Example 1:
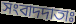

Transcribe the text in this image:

সংবাদদাতাঃ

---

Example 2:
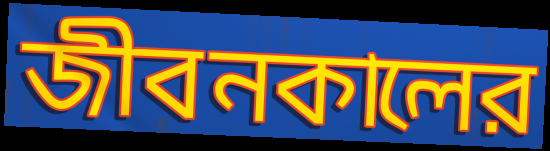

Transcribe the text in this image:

জীবনকালের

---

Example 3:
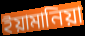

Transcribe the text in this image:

ইয়ামানিয়া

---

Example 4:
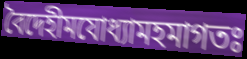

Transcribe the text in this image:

বৈদেহীমযোধ্যামহমাগতঃ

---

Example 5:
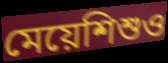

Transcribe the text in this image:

মেয়েশিশুও